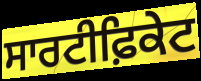
ਸਾਰਟੀਫ਼ਿਕੇਟ